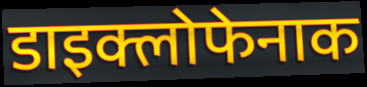
डाइक्लोफेनाक